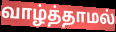
வாழ்த்தாமல்